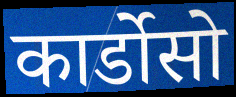
कार्डोसो